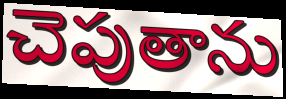
చెపుతాను